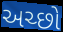
અચ્છો